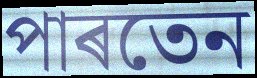
পাৰতেন